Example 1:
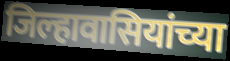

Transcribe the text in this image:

जिल्हावासियांच्या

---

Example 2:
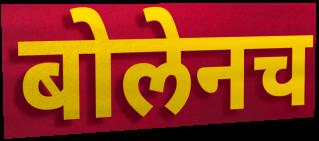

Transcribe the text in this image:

बोलेनच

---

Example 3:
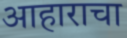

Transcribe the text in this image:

आहाराचा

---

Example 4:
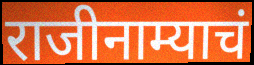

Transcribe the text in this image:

राजीनाम्याचं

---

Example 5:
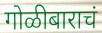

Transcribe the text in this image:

गोळीबाराचं